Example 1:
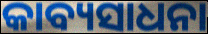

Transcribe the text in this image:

କାବ୍ୟସାଧନା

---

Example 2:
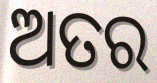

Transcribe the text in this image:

ଅତର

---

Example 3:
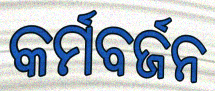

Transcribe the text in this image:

କର୍ମବର୍ଜନ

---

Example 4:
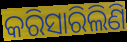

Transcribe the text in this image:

କରିସାରିଲିଣି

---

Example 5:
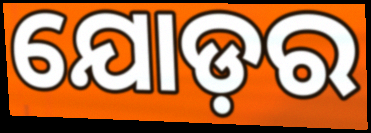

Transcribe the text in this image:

ଯୋଡ଼ର